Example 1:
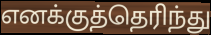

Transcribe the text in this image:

எனக்குத்தெரிந்து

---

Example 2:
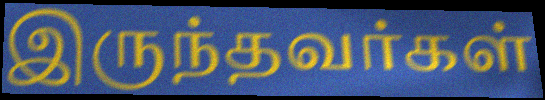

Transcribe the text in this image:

இருந்தவர்கள்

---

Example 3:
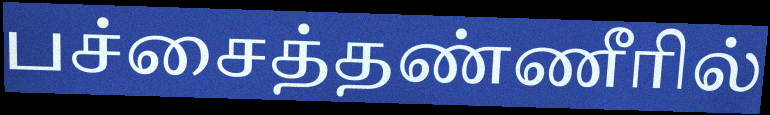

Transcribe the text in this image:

பச்சைத்தண்ணீரில்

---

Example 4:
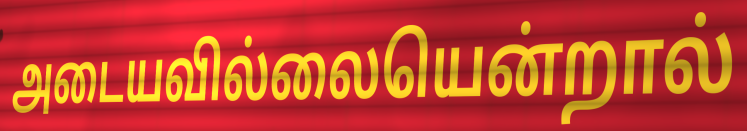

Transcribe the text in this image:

அடையவில்லையென்றால்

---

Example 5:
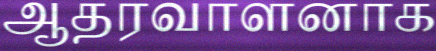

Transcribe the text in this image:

ஆதரவாளனாக